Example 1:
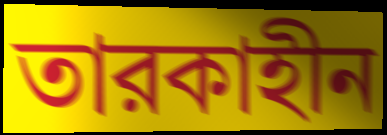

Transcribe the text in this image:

তারকাহীন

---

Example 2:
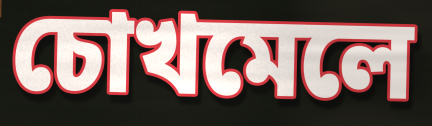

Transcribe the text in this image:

চোখমেলে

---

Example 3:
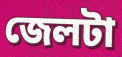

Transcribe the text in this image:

জেলটা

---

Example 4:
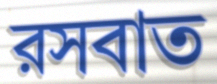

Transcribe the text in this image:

রসবাত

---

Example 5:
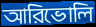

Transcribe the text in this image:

আরিভোলি